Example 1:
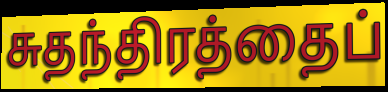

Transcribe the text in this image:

சுதந்திரத்தைப்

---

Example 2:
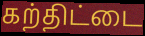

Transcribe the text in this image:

கற்திட்டை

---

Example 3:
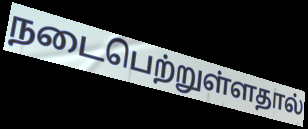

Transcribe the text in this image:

நடைபெற்றுள்ளதால்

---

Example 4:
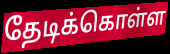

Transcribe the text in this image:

தேடிக்கொள்ள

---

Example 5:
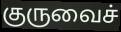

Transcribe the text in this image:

குருவைச்